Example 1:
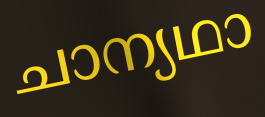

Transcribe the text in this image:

ചാന്യഥാ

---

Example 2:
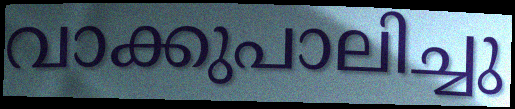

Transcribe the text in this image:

വാക്കുപാലിച്ചു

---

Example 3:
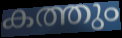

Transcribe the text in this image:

കത്തും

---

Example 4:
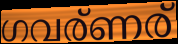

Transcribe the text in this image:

ഗവര്ണര്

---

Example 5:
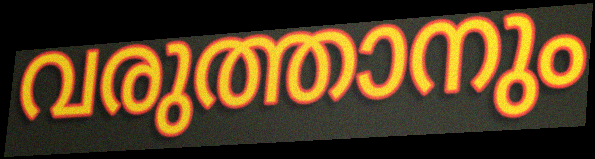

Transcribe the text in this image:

വരുത്താനും